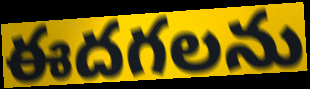
ఈదగలను